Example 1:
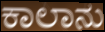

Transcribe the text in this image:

ಕಾಲಾನು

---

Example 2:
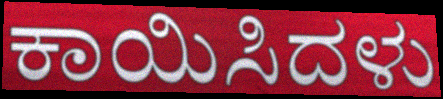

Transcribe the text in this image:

ಕಾಯಿಸಿದಳು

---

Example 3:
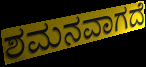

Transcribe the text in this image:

ಶಮನವಾಗದೆ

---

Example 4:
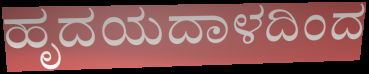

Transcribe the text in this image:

ಹೃದಯದಾಳದಿಂದ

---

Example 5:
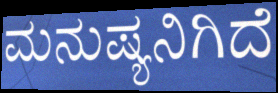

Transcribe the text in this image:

ಮನುಷ್ಯನಿಗಿದೆ